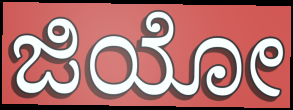
ಜಿಯೋ